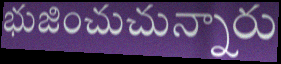
భుజించుచున్నారు